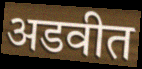
अडवीत